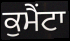
ਕੁਮੈਂਟਾ